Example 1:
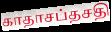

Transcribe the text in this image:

காதாசப்தசதி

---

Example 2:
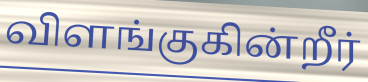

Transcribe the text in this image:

விளங்குகின்றீர்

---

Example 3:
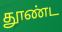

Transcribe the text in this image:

தூண்ட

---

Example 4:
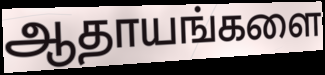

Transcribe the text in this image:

ஆதாயங்களை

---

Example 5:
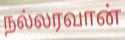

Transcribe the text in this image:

நல்லரவான்